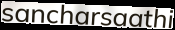
sancharsaathi